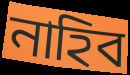
নাহিব